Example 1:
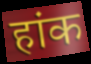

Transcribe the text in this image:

हांक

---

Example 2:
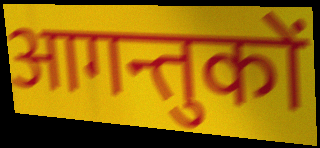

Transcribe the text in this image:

आगन्तुकों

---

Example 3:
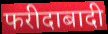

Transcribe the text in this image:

फरीदाबादी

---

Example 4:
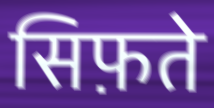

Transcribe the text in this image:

सिफ़ते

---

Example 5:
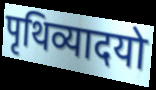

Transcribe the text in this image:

पृथिव्यादयो